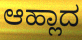
ಆಹ್ಲಾದ